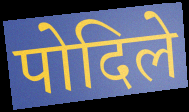
पोदिले